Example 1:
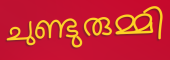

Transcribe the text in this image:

ചുണ്ടുരുമ്മി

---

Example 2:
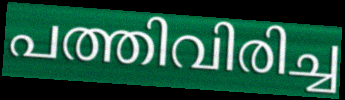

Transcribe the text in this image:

പത്തിവിരിച്ച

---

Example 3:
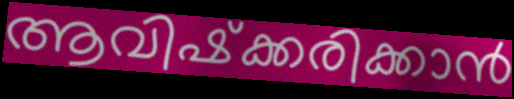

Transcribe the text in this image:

ആവിഷ്‌ക്കരിക്കാൻ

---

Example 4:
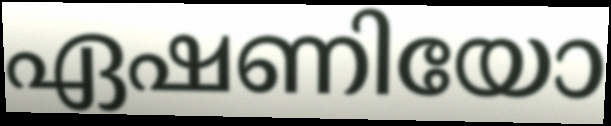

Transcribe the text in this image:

ഏഷണിയോ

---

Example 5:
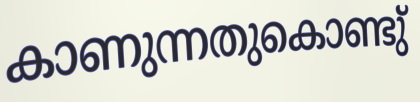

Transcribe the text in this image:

കാണുന്നതുകൊണ്ടു്